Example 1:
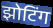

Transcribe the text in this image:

झोटिंग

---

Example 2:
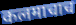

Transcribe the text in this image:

कलमाचाच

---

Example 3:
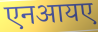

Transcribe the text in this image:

एनआयए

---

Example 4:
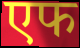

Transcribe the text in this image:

एफ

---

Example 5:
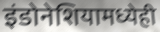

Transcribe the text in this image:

इंडोनेशियामध्येही